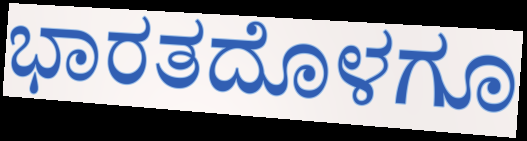
ಭಾರತದೊಳಗೂ